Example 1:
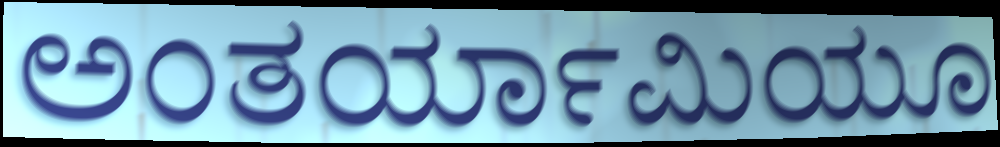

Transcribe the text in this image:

ಅಂತರ್ಯಾಮಿಯೂ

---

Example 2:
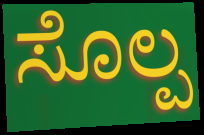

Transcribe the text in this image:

ಸೊಲ್ಪ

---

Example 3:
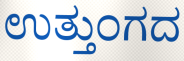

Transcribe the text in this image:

ಉತ್ತುಂಗದ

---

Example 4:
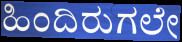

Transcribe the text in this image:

ಹಿಂದಿರುಗಲೇ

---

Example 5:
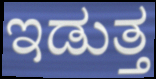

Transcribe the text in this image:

ಇಡುತ್ತ